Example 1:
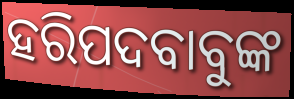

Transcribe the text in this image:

ହରିପଦବାବୁଙ୍କ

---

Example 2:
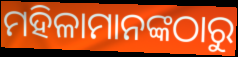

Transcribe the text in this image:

ମହିଳାମାନଙ୍କଠାରୁ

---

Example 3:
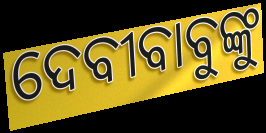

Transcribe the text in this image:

ଦେବୀବାବୁଙ୍କୁ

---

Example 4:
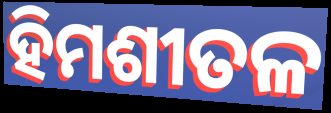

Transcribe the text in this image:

ହିମଶୀତଳ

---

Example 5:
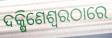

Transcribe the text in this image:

ଦକ୍ଷିଣେଶ୍ୱରଠାରେ